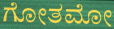
ಗೋತಮೋ